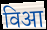
विआ